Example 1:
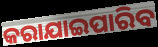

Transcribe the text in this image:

କରାଯାଇପାରିବ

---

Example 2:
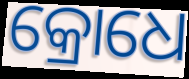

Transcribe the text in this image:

କ୍ରୋଧେ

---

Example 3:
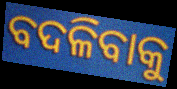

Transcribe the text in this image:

ବଦଳିବାକୁ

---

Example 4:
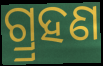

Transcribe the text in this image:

ଗ୍ର୍ରହଣ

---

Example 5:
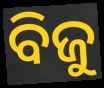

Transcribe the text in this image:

ବିଜୁ